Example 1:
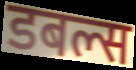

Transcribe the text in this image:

डबल्स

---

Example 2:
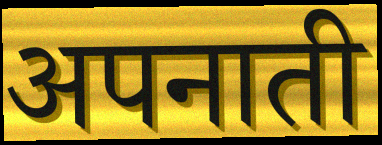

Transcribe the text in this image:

अपनाती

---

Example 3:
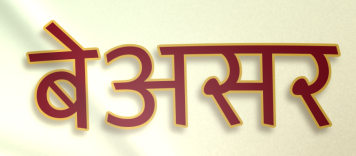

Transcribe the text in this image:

बेअसर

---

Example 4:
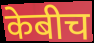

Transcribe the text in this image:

केबीच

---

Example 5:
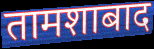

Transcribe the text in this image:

तामशाबाद